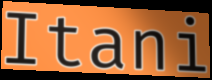
Itani